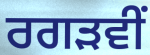
ਰਗੜਵੀਂ